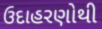
ઉદાહરણોથી